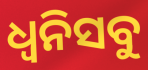
ଧ୍ୱନିସବୁ